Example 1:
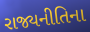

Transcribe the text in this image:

રાજ્યનીતિના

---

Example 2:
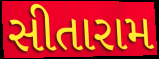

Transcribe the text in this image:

સીતારામ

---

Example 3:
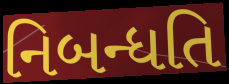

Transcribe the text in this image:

નિબન્ધતિ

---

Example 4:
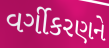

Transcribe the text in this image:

વર્ગીકરણને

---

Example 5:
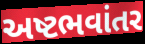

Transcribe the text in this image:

અષ્ટભવાંતર